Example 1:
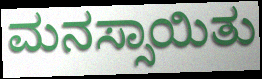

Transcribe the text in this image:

ಮನಸ್ಸಾಯಿತು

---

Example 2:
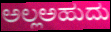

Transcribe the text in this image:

ಅಲ್ಲಅಹುದು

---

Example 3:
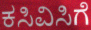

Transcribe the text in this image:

ಕಸಿವಿಸಿಗೆ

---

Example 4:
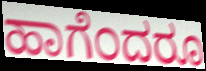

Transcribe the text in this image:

ಹಾಗೆಂದರೂ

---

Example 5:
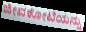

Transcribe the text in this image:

ಜೀವಕೋಟಿಯನ್ನು